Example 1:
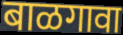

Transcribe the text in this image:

बाळगावा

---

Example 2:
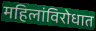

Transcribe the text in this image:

महिलांविरोधात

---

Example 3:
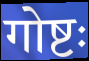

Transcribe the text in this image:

गोष्टः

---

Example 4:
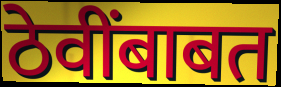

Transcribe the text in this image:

ठेवींबाबत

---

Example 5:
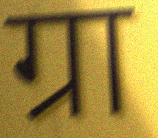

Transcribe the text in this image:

ग्रा